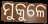
ମୁକୁଳେ